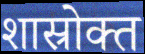
शास्रोक्त